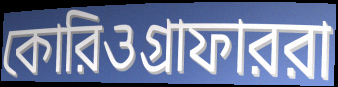
কোরিওগ্রাফাররা